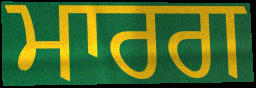
ਮਾਰਗ